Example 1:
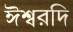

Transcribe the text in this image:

ঈশ্বরদি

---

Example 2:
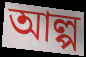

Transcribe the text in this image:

আল্প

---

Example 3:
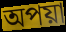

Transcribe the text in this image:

অপয়া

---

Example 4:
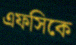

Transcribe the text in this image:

এফসিকে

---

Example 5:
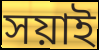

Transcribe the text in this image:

সয়াই